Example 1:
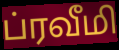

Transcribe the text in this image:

ப்ரவீமி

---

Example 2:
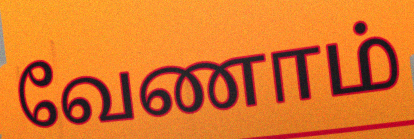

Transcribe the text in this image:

வேணாம்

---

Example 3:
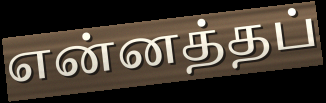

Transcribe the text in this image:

என்னத்தப்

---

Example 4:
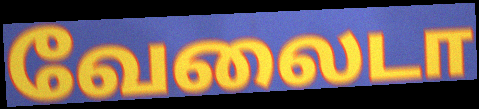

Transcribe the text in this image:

வேலைடா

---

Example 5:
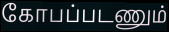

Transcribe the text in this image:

கோபப்படணும்